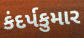
કંદર્પકુમાર